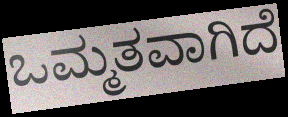
ಒಮ್ಮತವಾಗಿದೆ